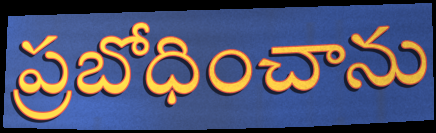
ప్రబోధించాను